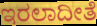
ಇರಲಾದೀತೆ